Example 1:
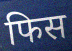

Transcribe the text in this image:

फिस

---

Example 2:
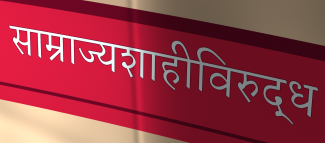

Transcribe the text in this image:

साम्राज्यशाहीविरुद्ध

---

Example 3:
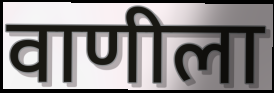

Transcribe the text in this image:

वाणीला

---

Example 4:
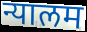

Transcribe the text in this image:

न्यालम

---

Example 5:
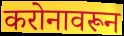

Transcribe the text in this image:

करोनावरून